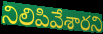
నిలిపివేశారని